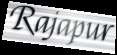
Rajapur